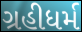
ગ્રહીધર્મ